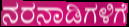
ನರನಾಡಿಗಳಿಗೆ